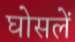
घोसलें